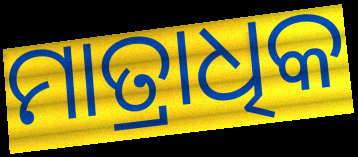
ମାତ୍ରାଧିକ